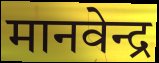
मानवेन्द्र